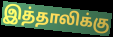
இத்தாலிக்கு